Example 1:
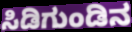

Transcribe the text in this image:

ಸಿಡಿಗುಂಡಿನ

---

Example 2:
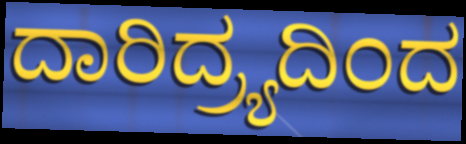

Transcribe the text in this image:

ದಾರಿದ್ರ್ಯದಿಂದ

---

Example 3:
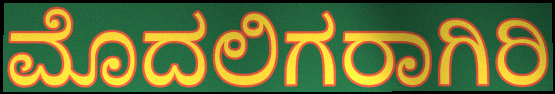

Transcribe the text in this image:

ಮೊದಲಿಗರಾಗಿರಿ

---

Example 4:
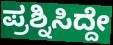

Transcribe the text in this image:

ಪ್ರಶ್ನಿಸಿದ್ದೇ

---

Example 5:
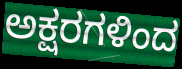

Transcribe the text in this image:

ಅಕ್ಷರಗಳಿಂದ